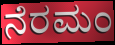
ನೆರಮಂ